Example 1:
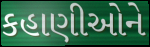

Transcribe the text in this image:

કહાણીઓને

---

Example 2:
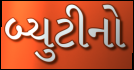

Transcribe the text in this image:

બ્યુટીનો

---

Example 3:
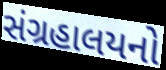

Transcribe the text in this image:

સંગ્રહાલયનો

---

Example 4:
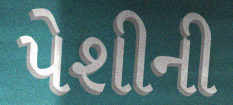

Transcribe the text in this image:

પેશીની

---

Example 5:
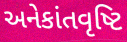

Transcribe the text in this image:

અનેકાંતવૃષ્ટિ